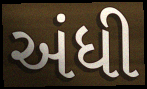
અંધી